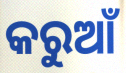
କରୁଆଁ